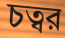
চত্বর